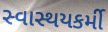
સ્વાસ્થયકર્મી